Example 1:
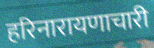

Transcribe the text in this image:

हरिनारायणाचारी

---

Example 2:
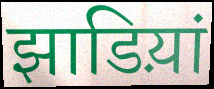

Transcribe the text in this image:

झाडिय़ां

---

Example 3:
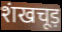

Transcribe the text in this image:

शंखचूड़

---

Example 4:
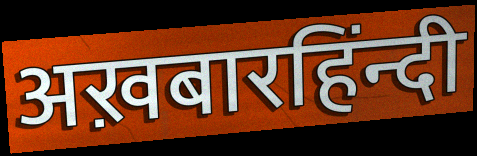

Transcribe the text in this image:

अख़बारहिंन्दी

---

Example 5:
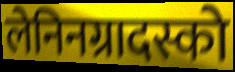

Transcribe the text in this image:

लेनिनग्रादस्को